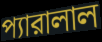
প্যারালাল